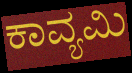
ಕಾವ್ಯಮಿ